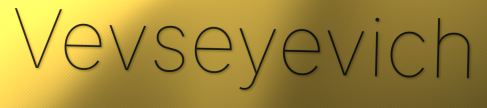
Vevseyevich